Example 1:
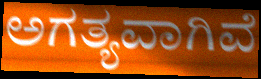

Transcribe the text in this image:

ಅಗತ್ಯವಾಗಿವೆ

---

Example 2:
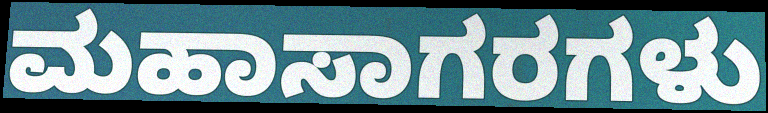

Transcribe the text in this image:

ಮಹಾಸಾಗರಗಳು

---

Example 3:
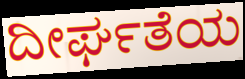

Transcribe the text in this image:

ದೀರ್ಘತೆಯ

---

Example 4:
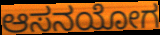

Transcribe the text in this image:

ಆಸನಯೋಗ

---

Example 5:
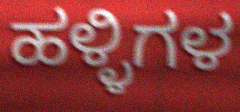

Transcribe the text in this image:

ಹಳ್ಳಿಗಳ